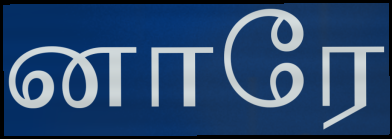
னாரே